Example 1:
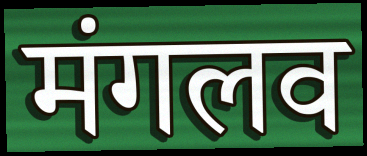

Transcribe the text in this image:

मंगलव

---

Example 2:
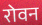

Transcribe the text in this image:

रोवन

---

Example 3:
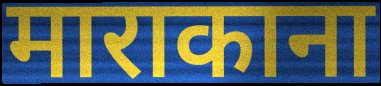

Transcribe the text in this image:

माराकाना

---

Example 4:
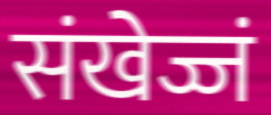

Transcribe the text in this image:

संखेज्जं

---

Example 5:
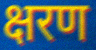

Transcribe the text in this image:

क्षरण